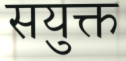
सयुक्त